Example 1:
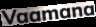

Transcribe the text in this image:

Vaamana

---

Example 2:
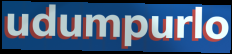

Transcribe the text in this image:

udumpurlo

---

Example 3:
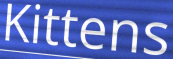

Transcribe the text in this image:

Kittens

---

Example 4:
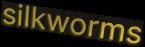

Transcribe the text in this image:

silkworms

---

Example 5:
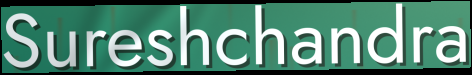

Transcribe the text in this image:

Sureshchandra